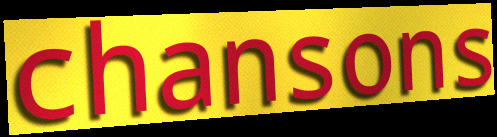
chansons